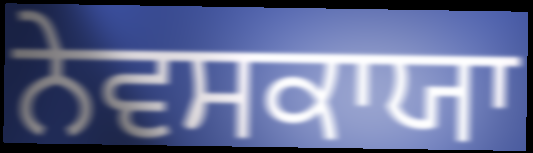
ਨੇਵਸਕਾਯਾ